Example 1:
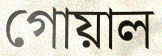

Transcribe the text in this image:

গোয়াল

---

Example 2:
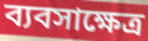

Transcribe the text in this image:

ব্যবসাক্ষেত্র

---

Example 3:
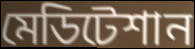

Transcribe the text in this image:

মেডিটেশান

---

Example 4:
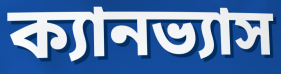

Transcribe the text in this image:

ক্যানভ্যাস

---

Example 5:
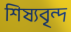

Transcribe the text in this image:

শিষ্যবৃন্দ